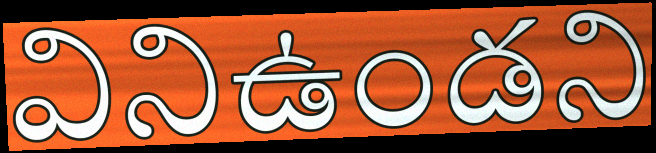
వినిఉండని